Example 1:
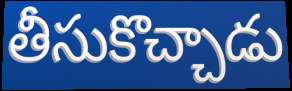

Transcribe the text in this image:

తీసుకొచ్చాడు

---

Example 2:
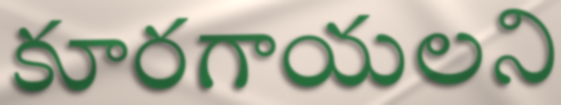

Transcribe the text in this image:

కూరగాయలని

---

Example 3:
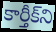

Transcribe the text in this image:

కార్తీక్‌ని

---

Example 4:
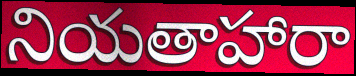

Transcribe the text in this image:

నియతాహారా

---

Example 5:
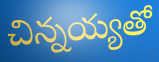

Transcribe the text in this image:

చిన్నయ్యతో